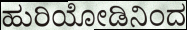
ಹುರಿಯೋಡಿನಿಂದ